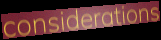
considerations